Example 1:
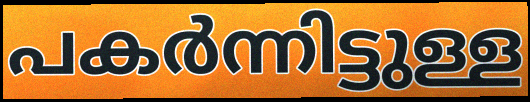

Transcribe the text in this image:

പകർന്നിട്ടുള്ള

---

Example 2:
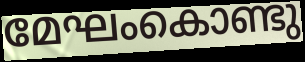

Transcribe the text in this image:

മേഘംകൊണ്ടു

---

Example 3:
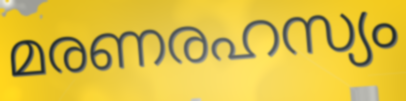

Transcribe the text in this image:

മരണരഹസ്യം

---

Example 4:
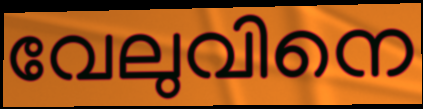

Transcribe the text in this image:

വേലുവിനെ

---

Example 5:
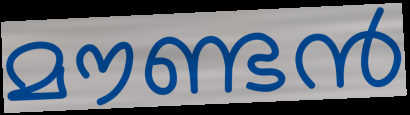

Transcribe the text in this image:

മൗണ്ടൻ